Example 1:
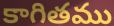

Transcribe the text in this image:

కాగితము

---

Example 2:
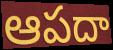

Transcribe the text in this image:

ఆపదా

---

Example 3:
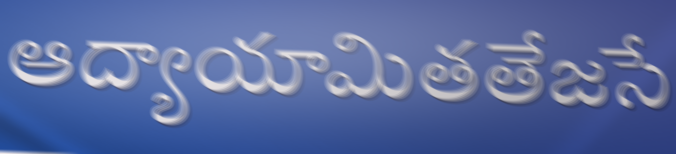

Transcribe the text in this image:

ఆద్యాయామితతేజసే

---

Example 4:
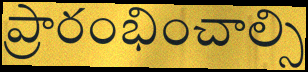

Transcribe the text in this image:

ప్రారంభించాల్సి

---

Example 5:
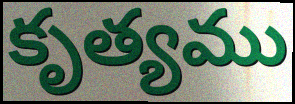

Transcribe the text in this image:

కృత్యము